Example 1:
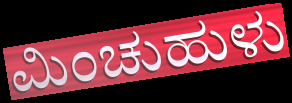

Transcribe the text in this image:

ಮಿಂಚುಹುಳು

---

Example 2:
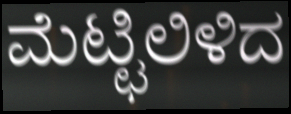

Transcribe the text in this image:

ಮೆಟ್ಟಿಲಿಳಿದ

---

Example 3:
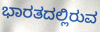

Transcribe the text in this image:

ಭಾರತದಲ್ಲಿರುವ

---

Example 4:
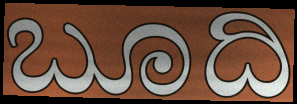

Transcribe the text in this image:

ಬೂದಿ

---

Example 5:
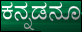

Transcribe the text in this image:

ಕನ್ನಡನೂ